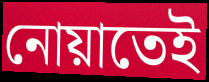
নোয়াতেই